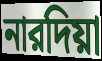
নারদিয়া